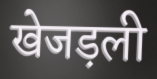
खेजड़ली